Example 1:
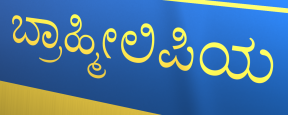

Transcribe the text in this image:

ಬ್ರಾಹ್ಮೀಲಿಪಿಯ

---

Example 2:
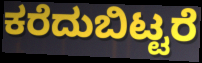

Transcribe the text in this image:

ಕರೆದುಬಿಟ್ಟರೆ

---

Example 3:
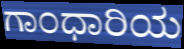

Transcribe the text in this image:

ಗಾಂಧಾರಿಯ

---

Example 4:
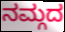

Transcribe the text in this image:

ನಮ್ಗದ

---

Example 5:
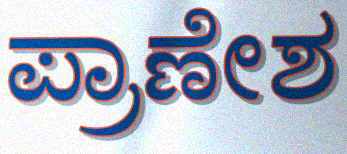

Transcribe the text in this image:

ಪ್ರಾಣೇಶ